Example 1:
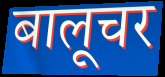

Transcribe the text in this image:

बालूचर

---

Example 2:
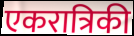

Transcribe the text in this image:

एकरात्रिकी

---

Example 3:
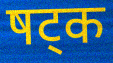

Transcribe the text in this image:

षट्क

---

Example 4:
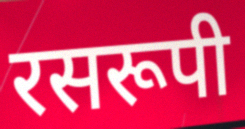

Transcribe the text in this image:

रसरूपी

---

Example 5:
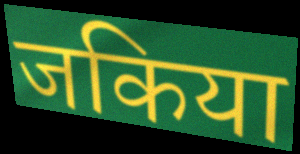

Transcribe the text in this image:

जकिया